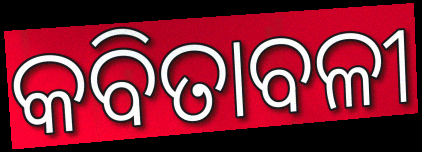
କବିତାବଳୀ